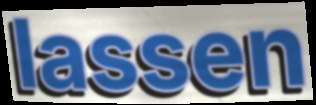
lassen